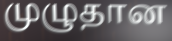
முழுதான